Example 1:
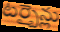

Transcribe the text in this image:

టర్బైన్లు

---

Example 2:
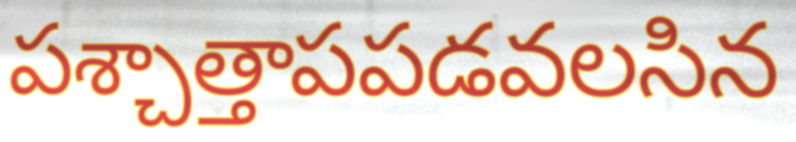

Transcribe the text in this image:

పశ్చాత్తాపపడవలసిన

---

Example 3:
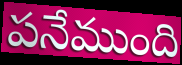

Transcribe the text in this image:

పనేముంది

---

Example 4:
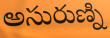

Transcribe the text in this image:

అసురుణ్ని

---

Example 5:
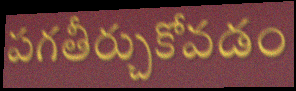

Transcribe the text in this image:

పగతీర్చుకోవడం